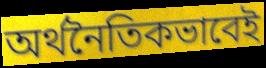
অর্থনৈতিকভাবেই